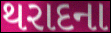
થરાદના